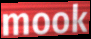
mook